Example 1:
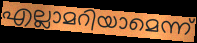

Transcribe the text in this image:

എല്ലാമറിയാമെന്ന്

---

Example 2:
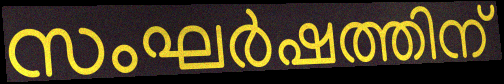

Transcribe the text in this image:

സംഘർഷത്തിന്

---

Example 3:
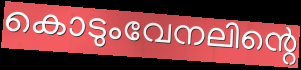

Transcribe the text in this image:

കൊടുംവേനലിന്റെ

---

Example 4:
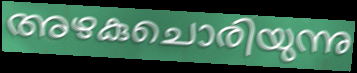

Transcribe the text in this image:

അഴകുചൊരിയുന്നു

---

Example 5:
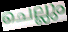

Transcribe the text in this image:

ചെല്ലും